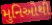
મુનિઓથી